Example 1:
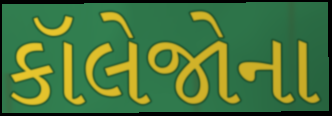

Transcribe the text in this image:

કૉલેજોના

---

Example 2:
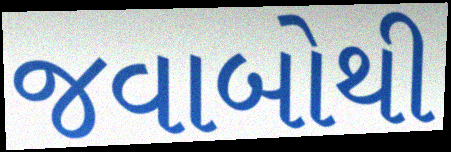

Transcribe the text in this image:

જવાબોથી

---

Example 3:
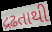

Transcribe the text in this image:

દ્રઢતાથી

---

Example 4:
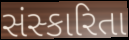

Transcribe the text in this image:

સંસ્કારિતા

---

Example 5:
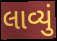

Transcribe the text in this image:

લાવ્યું